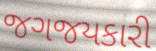
જગજયકારી